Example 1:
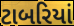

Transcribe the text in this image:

ટાબરિયાં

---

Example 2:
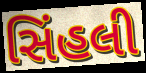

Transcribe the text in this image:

સિંહલી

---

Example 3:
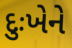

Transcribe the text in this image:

દુઃખેને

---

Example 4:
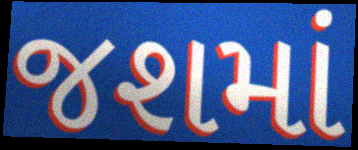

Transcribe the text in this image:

જશમાં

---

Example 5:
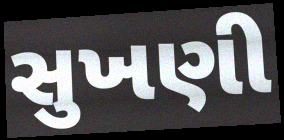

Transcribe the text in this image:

સુખણી